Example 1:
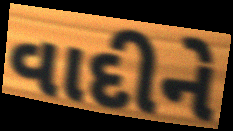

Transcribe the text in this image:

વાદીને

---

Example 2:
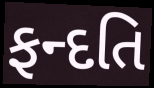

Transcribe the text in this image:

ફન્દતિ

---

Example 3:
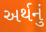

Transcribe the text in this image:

અર્થનું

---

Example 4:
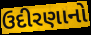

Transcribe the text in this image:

ઉદીરણાનો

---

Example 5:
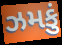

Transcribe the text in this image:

ઝમકું